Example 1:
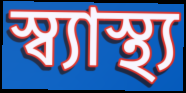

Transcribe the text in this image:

স্ব্যাস্থ্য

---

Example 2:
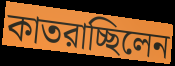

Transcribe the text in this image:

কাতরাচ্ছিলেন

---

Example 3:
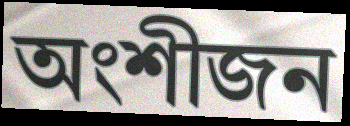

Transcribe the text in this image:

অংশীজন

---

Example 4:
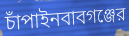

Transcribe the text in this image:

চাঁপাইনবাবগঞ্জের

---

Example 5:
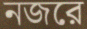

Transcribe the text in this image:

নজরে